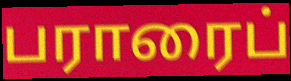
பராரைப்